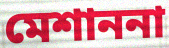
মেশাননা